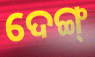
ଦେଙ୍ଗ୍